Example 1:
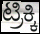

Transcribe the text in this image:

ಟ್ರಿಕ್ಕಿ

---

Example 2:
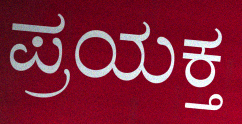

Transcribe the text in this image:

ಪ್ರಯಕ್ತ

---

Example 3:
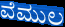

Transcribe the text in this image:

ವೆಮುಲ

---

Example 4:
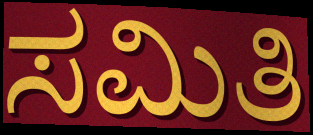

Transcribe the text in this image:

ಸಮಿತಿ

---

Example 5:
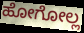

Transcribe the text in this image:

ಹೋಗೋಲ್ಲ